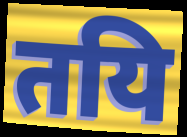
तयि